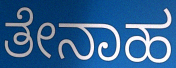
ತೇನಾಹ